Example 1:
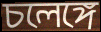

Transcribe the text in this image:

চলেঙ্গে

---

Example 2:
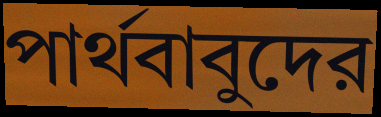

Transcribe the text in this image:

পার্থবাবুদের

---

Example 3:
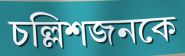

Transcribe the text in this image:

চল্লিশজনকে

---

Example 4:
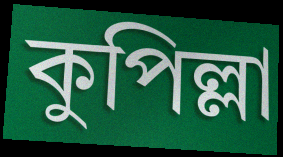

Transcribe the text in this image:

কুপিল্লা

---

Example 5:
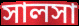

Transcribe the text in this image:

সালসা